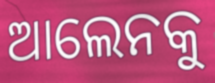
ଆଲେନକୁ